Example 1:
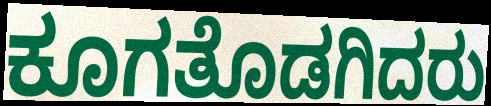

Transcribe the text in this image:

ಕೂಗತೊಡಗಿದರು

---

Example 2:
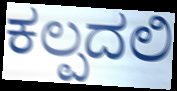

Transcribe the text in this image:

ಕಲ್ಪದಲಿ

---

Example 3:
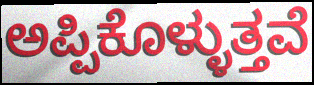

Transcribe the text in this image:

ಅಪ್ಪಿಕೊಳ್ಳುತ್ತವೆ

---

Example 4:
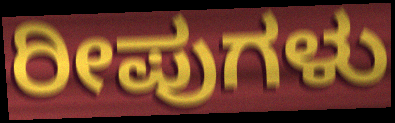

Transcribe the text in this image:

ರೀಪುಗಳು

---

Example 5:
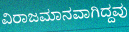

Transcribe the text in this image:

ವಿರಾಜಮಾನವಾಗಿದ್ದವು